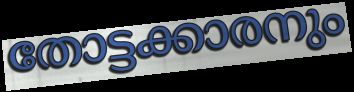
തോട്ടക്കാരനും